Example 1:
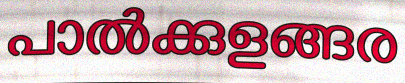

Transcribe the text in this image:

പാൽക്കുളങ്ങര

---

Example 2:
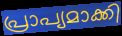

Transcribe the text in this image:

പ്രാപ്യമാക്കി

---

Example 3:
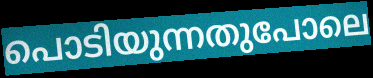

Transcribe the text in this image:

പൊടിയുന്നതുപോലെ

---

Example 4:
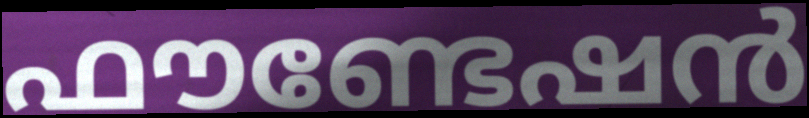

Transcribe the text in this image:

ഫൗണ്ടേഷൻ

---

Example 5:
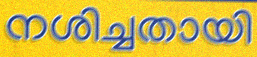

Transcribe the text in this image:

നശിച്ചതായി